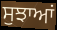
ਸੁਝਾਆਂ